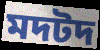
মদটদ